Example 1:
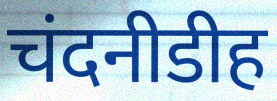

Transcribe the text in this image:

चंदनीडीह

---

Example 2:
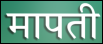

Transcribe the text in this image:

मापती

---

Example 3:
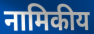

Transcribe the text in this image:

नामिकीय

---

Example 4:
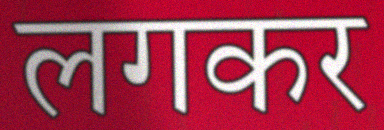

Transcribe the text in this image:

लगकर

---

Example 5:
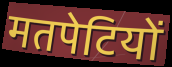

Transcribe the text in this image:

मतपेटियों